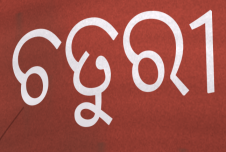
ଚତୁରୀ